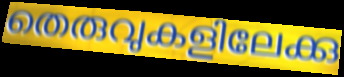
തെരുവുകളിലേക്കു